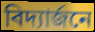
বিদ্যার্জনে